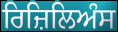
ਰਿਜ਼ਿਲਿਅੰਸ